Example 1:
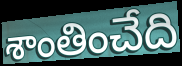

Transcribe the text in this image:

శాంతించేది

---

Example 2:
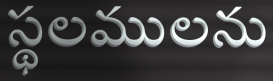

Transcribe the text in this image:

స్థలములను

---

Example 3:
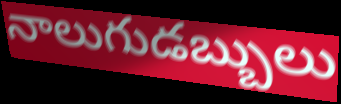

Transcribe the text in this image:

నాలుగుడబ్బులు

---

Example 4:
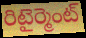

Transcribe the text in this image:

రిటైర్మెంట్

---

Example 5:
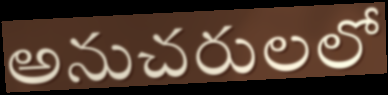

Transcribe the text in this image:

అనుచరులలో